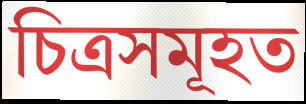
চিত্ৰসমূহত